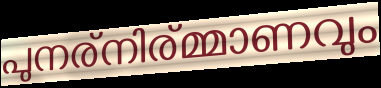
പുനര്നിര്മ്മാണവും